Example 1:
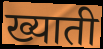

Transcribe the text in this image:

ख्याती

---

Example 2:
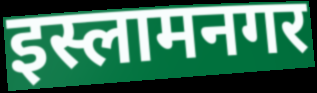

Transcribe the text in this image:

इस्लामनगर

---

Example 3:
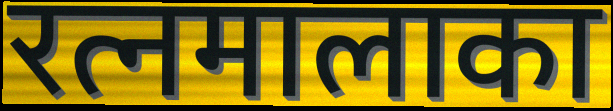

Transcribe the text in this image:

रत्नमालाका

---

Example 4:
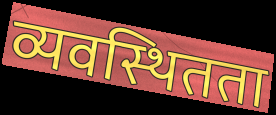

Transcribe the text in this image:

व्यवस्थितता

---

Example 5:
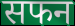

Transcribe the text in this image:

सफन